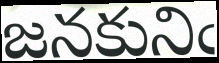
జనకునిఁ